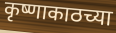
कृष्णाकाठच्या